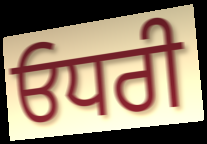
ਓਧਰੀ